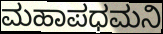
ಮಹಾಪಧಮನಿ